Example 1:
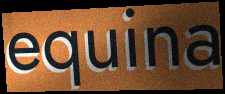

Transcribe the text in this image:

equina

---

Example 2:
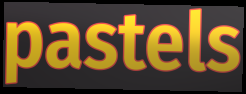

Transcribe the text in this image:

pastels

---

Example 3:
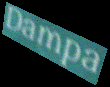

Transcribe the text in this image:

Dampa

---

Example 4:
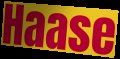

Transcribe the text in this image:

Haase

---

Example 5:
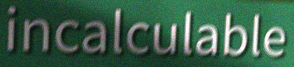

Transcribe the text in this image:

incalculable